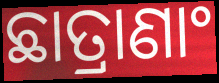
ଛାତ୍ରାଣାଂ